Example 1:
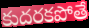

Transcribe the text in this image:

కుదరకపోతే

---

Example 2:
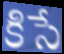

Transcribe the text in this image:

కిసే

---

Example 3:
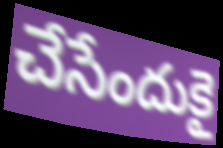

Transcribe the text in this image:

చేసేందుకై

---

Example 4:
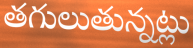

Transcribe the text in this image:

తగులుతున్నట్లు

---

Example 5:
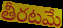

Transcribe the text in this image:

తీరటమే